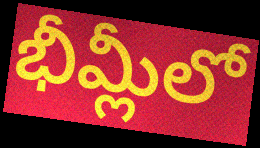
భీమ్లీలో